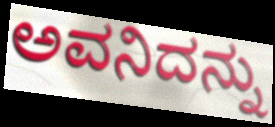
ಅವನಿದನ್ನು